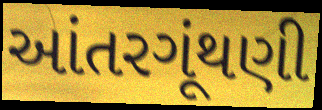
આંતરગૂંથણી